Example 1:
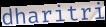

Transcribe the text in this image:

dharitri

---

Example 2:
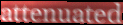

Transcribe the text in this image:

attenuated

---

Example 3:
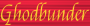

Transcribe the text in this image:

Ghodbunder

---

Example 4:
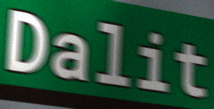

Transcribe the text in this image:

Dalit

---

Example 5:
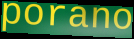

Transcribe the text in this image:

porano